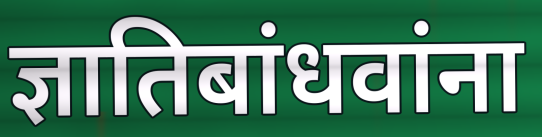
ज्ञातिबांधवांना